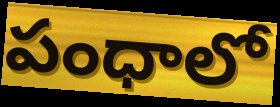
పంధాలో